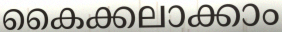
കൈക്കലാക്കാം